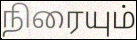
நிரையும்